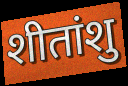
शीतांशु